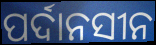
ପର୍ଦାନସୀନ